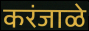
करंजाळे